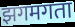
झगमगता